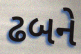
ઢબને